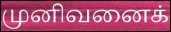
முனிவனைக்